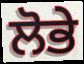
ਲੋਭੇ